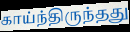
காய்ந்திருந்தது